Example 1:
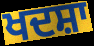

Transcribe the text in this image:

ਖਦਸ਼ਾ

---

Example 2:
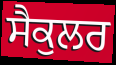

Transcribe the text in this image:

ਸੈਕੁਲਰ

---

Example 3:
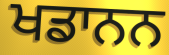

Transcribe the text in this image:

ਖਡਾਨਨ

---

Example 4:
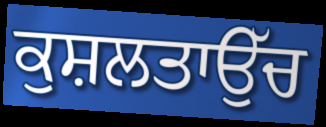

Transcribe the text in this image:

ਕੁਸ਼ਲਤਾਉੱਚ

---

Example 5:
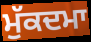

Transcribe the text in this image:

ਮੁੱਕਦਮਾ